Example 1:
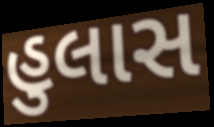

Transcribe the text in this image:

હુલાસ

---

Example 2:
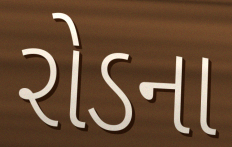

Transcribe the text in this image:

રોડના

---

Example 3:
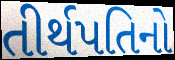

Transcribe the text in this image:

તીર્થપતિનો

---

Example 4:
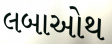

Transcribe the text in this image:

લબાઓથ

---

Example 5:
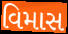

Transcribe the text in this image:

વિમાસ